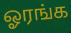
ஓரங்க